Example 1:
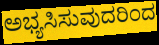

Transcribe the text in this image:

ಅಭ್ಯಸಿಸುವುದರಿಂದ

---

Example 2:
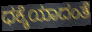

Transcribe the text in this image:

ಧಕ್ಕೆಯಾದಂತೆ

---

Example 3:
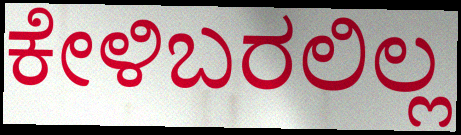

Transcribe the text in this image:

ಕೇಳಿಬರಲಿಲ್ಲ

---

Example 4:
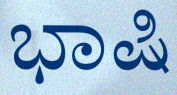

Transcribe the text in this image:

ಭಾಷಿ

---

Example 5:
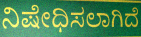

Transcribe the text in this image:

ನಿಷೇಧಿಸಲಾಗಿದೆ